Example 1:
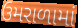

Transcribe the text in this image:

ઉમરાળામાં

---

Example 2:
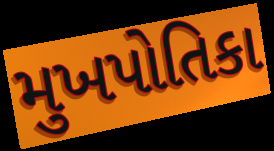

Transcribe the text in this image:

મુખપોતિકા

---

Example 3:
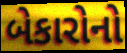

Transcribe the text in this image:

બેકારોનો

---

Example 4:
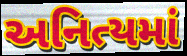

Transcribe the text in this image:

અનિત્યમાં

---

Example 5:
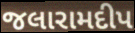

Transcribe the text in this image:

જલારામદીપ